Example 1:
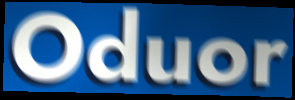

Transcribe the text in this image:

Oduor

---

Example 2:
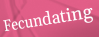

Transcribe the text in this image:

Fecundating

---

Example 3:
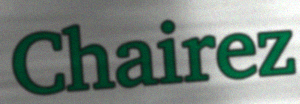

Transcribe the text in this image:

Chairez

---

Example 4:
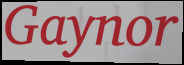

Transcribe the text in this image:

Gaynor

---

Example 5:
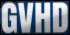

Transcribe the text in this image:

GVHD